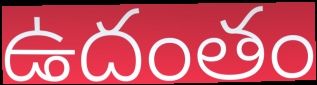
ఉదంతం